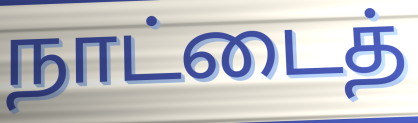
நாட்டைத்